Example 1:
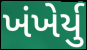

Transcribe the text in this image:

ખંખેર્યુ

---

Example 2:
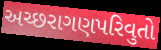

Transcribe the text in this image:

અચ્છરાગણપરિવુતો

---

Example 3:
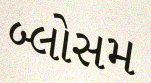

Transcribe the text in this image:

બ્લોસમ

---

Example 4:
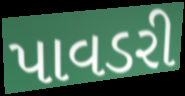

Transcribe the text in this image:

પાવડરી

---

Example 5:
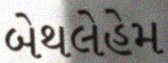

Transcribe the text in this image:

બેથલેહેમ